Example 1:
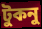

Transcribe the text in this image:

টুকনু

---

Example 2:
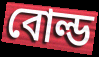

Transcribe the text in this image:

বোল্ড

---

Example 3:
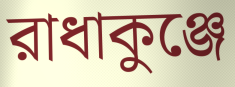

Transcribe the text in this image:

রাধাকুঞ্জে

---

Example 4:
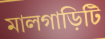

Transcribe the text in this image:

মালগাড়িটি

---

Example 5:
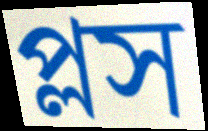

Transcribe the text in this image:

প্লস